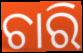
ଚାରି